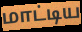
மாட்டிய